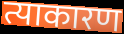
त्याकारण